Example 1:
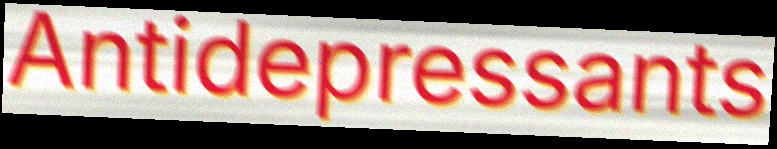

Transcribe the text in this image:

Antidepressants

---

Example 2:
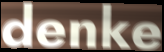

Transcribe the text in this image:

denke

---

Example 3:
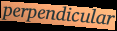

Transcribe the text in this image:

perpendicular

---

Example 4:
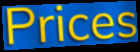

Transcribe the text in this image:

Prices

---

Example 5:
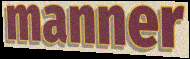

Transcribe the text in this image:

manner